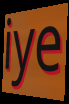
iye